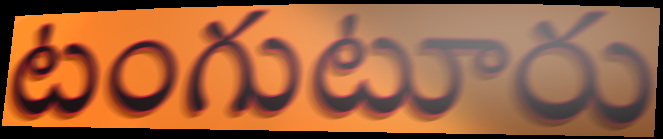
టంగుటూరు